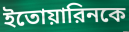
ইতোয়ারিনকে